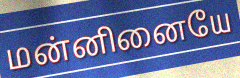
மன்னினையே